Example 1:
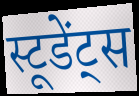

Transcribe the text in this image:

स्टूडेंट्स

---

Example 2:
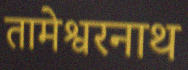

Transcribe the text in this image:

तामेश्वरनाथ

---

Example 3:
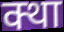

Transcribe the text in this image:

क्था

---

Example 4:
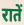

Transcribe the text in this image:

रातें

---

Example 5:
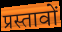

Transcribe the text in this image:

प्रस्तावों